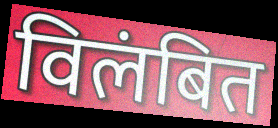
विलंबित